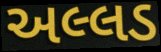
અલ્લડ